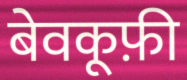
बेवकूफ़ी